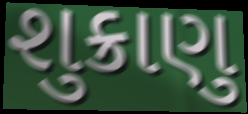
શુક્રાણુ